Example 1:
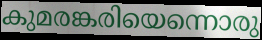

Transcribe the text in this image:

കുമരങ്കരിയെന്നൊരു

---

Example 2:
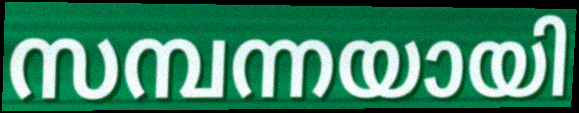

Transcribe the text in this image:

സമ്പന്നയായി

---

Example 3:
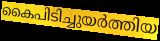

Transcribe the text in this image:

കൈപിടിച്ചുയർത്തിയ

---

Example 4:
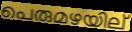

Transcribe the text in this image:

പെരുമഴയില്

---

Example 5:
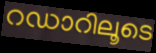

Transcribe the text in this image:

റഡാറിലൂടെ